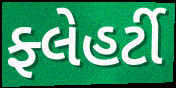
ફ્લેહર્ટી